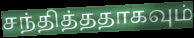
சந்தித்ததாகவும்